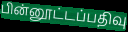
பின்னூட்டப்பதிவு